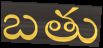
బతు